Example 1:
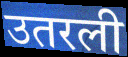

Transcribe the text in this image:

उतरली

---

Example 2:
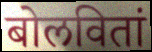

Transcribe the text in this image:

बोलवितां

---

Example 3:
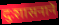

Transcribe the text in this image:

दुःशासनाने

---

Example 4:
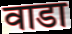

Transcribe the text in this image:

वाडा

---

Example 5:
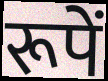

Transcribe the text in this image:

रूपें